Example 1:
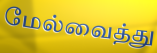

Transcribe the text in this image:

மேல்வைத்து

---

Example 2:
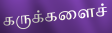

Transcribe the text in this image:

கருக்களைச்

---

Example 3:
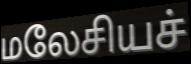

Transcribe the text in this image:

மலேசியச்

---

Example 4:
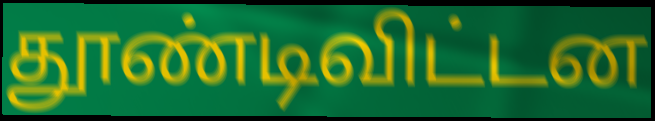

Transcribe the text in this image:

தூண்டிவிட்டன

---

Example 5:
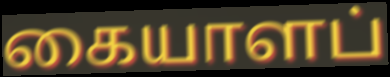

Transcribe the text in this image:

கையாளப்